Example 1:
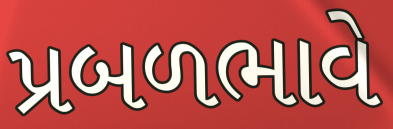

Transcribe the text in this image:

પ્રબળભાવે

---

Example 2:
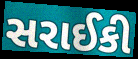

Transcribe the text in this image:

સરાઈકી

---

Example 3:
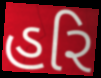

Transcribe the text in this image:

હરિ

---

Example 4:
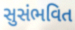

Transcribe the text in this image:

સુસંભવિત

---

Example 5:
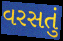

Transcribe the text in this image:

વરસતું